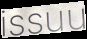
issuu